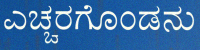
ಎಚ್ಚರಗೊಂಡನು